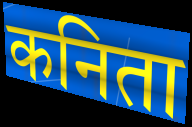
कनिता